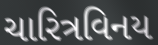
ચારિત્રવિનય